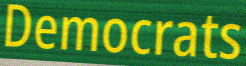
Democrats